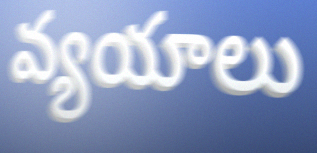
వ్యయాలు